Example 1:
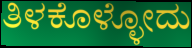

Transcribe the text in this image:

ತಿಳಕೊಳ್ಳೋದು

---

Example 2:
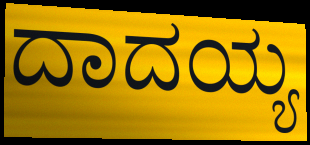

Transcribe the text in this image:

ದಾದಯ್ಯ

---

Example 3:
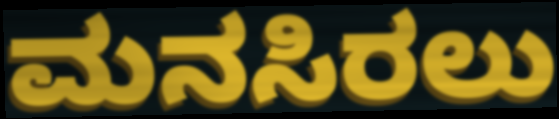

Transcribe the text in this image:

ಮನಸಿರಲು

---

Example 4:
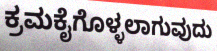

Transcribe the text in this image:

ಕ್ರಮಕೈಗೊಳ್ಳಲಾಗುವುದು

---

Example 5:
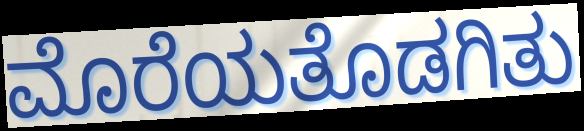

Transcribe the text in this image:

ಮೊರೆಯತೊಡಗಿತು